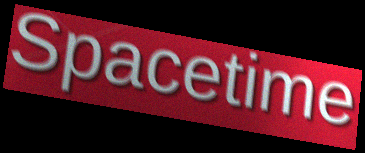
Spacetime